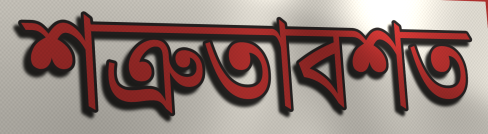
শত্রুতাবশত